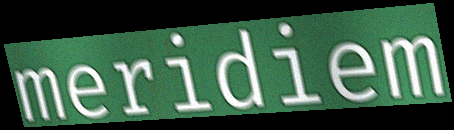
meridiem